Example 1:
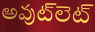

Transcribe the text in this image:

అవుట్‌లెట్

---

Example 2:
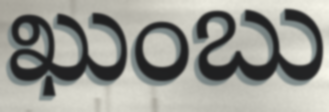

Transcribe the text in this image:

ఖుంబు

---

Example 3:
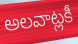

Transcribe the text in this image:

అలవాట్లకీ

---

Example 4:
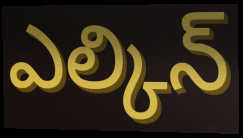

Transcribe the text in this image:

ఎల్కిన్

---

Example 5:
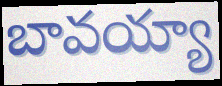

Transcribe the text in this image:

బావయ్యా